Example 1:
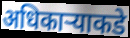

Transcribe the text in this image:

अधिकार्‍याकडे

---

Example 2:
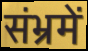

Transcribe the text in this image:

संभ्रमें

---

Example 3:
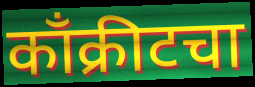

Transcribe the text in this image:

काँक्रीटचा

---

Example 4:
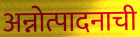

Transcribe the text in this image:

अन्नोत्पादनाची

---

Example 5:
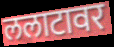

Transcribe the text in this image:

ललाटावर